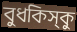
বুধকিস্‌কু